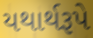
યથાર્થરૂપે